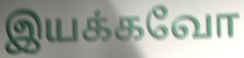
இயக்கவோ